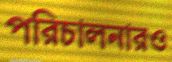
পরিচালনারও